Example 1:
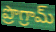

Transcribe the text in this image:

ప్రొగ్రామ్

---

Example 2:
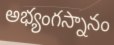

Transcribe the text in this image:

అభ్యంగస్నానం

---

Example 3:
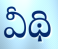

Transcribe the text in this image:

వీథి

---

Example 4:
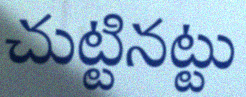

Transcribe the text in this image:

చుట్టినట్టు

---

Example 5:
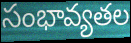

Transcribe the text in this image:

సంభావ్యతల